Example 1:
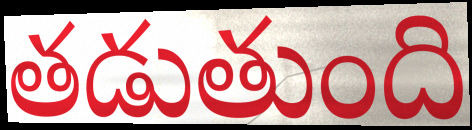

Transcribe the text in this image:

తడుతుంది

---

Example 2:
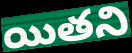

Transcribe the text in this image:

యితని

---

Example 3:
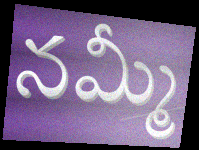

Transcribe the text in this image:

నమ్మీ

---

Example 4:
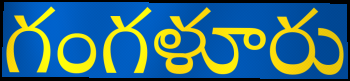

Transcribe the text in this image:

గంగళూరు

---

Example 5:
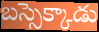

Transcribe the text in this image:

బస్సెక్కాడు